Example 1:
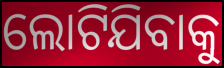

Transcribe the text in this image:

ଲୋଟିଯିବାକୁ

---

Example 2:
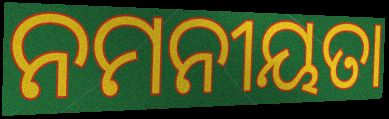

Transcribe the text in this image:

ନମନୀୟତା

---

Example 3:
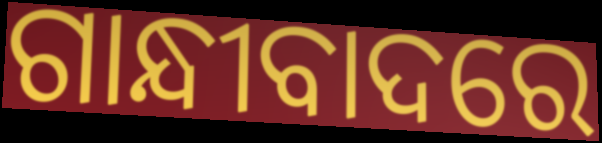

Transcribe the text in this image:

ଗାନ୍ଧୀବାଦରେ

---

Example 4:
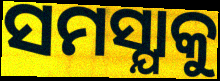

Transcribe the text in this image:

ସମସ୍ଯାକୁ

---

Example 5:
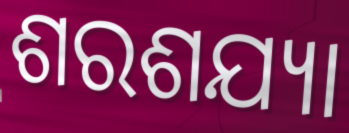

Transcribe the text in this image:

ଶରଶଯ୍ୟା